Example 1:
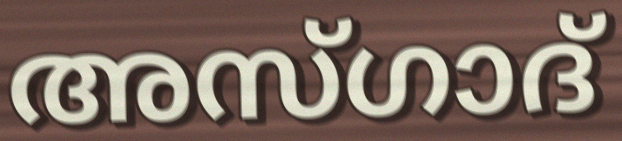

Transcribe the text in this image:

അസ്ഗാദ്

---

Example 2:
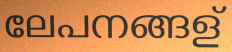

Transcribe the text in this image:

ലേപനങ്ങള്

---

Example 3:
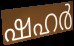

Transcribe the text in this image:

ഷഹർ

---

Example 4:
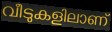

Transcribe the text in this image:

വീടുകളിലാണ്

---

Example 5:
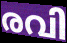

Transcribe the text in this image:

രവി